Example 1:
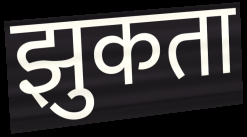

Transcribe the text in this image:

झुकता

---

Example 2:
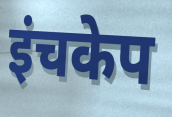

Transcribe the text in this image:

इंचकेप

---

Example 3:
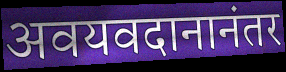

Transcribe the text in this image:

अवयवदानानंतर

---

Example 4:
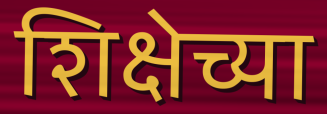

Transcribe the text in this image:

शिक्षेच्या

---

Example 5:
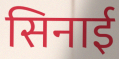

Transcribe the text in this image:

सिनाई